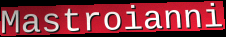
Mastroianni